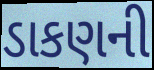
ડાકણની